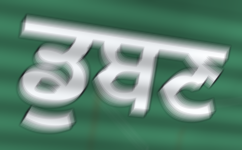
ਡੁਬਣ